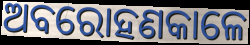
ଅବରୋହଣକାଳେ